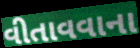
વીતાવવાના